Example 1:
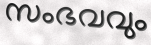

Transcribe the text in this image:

സംഭവവും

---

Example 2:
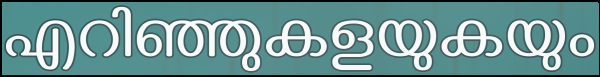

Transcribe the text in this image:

എറിഞ്ഞുകളയുകയും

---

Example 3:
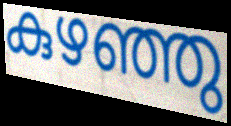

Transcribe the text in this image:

കുഴഞ്ഞു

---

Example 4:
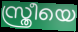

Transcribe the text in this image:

സ്ത്രീയെ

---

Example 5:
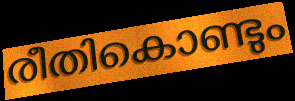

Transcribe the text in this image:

രീതികൊണ്ടും